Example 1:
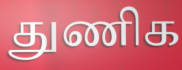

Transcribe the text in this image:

துணிக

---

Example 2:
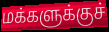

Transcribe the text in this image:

மக்களுக்குச்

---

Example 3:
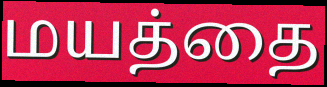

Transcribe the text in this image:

மயத்தை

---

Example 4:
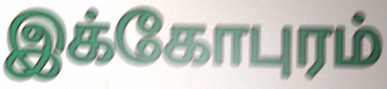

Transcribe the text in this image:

இக்கோபுரம்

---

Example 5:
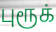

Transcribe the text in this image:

புரூக்